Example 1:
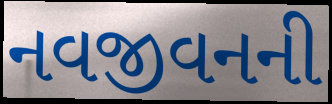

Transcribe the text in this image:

નવજીવનની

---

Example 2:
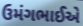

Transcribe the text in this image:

ઉમંગભાઈએ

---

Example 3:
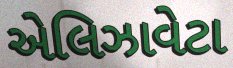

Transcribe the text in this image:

એલિઝાવેટા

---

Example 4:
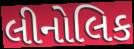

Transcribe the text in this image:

લીનોલિક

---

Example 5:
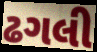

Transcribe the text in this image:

ઢગલી